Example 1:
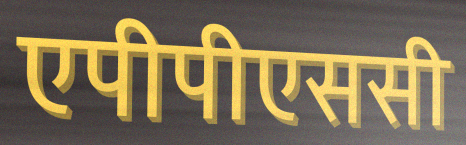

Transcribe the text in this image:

एपीपीएससी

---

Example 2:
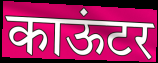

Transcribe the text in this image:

काऊंटर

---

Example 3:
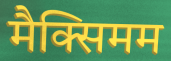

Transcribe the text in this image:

मैक्सिमम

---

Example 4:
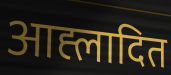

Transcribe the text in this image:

आह्लादित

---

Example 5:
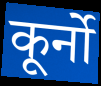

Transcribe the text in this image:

कूर्नो